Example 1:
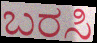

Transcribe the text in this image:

ಬರಸಿ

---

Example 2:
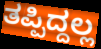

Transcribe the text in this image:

ತಪ್ಪಿದ್ದಲ್ಲ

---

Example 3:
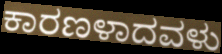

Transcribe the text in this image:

ಕಾರಣಳಾದವಳು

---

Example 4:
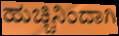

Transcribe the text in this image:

ಹುಚ್ಚಿನಿಂದಾಗಿ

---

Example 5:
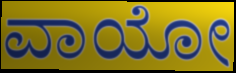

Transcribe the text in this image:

ವಾಯೋ